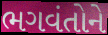
ભગવંતોને